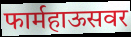
फार्महाऊसवर